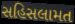
સહિસલામત